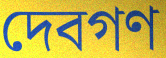
দেবগণ